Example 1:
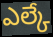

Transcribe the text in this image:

ఎల్కే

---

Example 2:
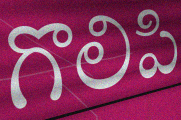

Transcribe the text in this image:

గొలిపి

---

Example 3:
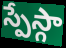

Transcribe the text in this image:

స్పేస్గా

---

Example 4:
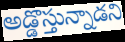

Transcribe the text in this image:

అడ్డొస్తున్నాడని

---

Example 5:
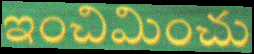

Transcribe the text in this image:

ఇంచిమించు